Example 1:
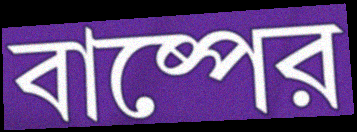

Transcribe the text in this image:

বাষ্পের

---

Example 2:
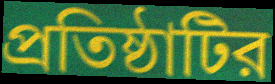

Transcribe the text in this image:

প্রতিষ্ঠাটির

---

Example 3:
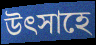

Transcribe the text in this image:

উৎসাহে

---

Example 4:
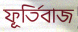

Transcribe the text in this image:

ফূর্তিবাজ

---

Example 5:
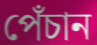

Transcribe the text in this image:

পেঁচান